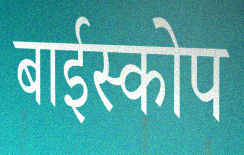
बाईस्कोप